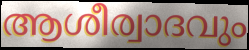
ആശീര്വാദവും